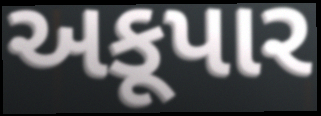
અકૂપાર